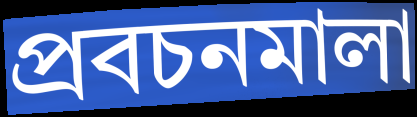
প্রবচনমালা